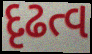
દૃઢત્વ